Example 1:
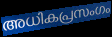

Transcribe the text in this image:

അധികപ്രസംഗം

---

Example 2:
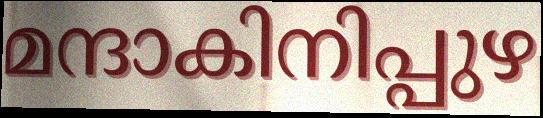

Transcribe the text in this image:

മന്ദാകിനിപ്പുഴ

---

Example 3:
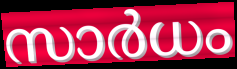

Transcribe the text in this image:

സാർധം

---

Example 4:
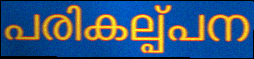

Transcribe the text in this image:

പരികല്പ്പന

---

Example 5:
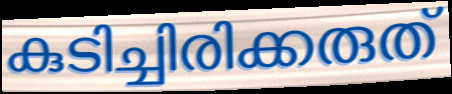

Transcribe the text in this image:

കുടിച്ചിരിക്കരുത്